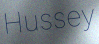
Hussey